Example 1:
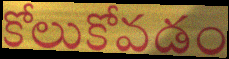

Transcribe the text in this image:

కోలుకోవడం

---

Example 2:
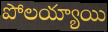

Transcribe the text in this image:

పోలయ్యాయి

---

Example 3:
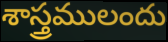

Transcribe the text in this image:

శాస్త్రములందు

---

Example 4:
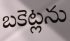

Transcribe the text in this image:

బకెట్లను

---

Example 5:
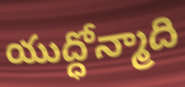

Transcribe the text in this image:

యుద్ధోన్మాది